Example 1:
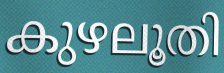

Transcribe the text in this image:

കുഴലൂതി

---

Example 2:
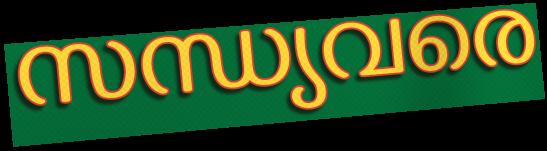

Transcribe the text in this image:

സന്ധ്യവരെ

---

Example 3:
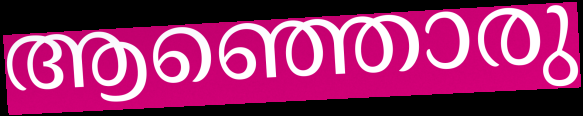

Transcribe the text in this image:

ആഞ്ഞൊരു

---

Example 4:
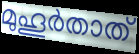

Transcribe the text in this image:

മുഹൂർതാത്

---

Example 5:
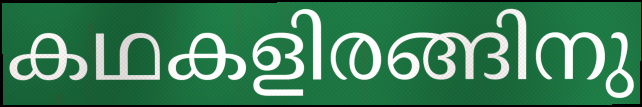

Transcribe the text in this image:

കഥകളിരങ്ങിനു